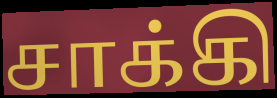
சாக்கி